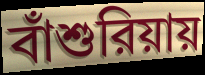
বাঁশুরিয়ায়